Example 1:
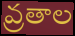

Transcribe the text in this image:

వ్రతాల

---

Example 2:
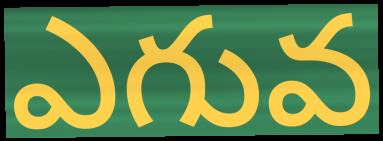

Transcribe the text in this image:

ఎగువ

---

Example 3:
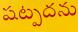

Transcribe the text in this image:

షట్పదను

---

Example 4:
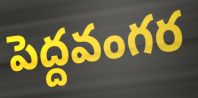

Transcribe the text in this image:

పెద్దవంగర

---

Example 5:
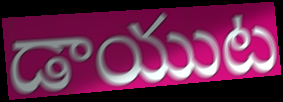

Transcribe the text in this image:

డాయుట